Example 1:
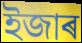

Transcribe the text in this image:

ইজাৰ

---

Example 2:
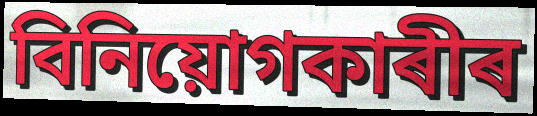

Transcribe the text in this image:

বিনিয়োগকাৰীৰ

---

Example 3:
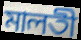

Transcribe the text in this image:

মালতী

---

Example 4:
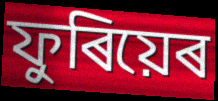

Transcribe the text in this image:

ফুৰিয়েৰ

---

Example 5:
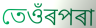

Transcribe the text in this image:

তেওঁৰপৰা